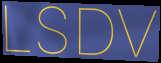
LSDV